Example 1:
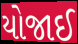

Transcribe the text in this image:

યોજાઈ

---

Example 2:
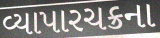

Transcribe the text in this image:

વ્યાપારચક્રના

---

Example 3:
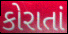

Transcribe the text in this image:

કોરાતાં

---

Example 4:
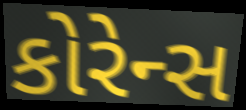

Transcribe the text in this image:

કોરેન્સ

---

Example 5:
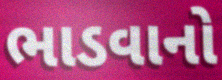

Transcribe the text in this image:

ભાડવાનો